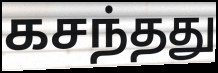
கசந்தது